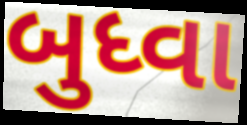
બુધ્વા